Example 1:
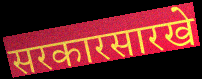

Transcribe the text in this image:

सरकारसारखे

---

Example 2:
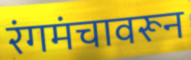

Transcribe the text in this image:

रंगमंचावरून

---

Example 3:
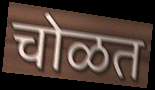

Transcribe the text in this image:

चोळत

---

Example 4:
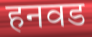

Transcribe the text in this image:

हनवड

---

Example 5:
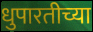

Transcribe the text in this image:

धुपारतीच्या